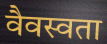
वैवस्वता